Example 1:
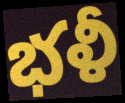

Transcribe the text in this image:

భళీ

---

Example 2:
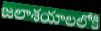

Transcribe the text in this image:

జలాశయాలలోకి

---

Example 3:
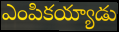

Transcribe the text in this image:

ఎంపికయ్యాడు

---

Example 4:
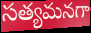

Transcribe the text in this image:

సత్యమనగా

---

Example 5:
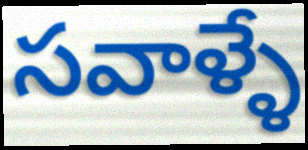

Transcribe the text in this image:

సవాళ్ళే